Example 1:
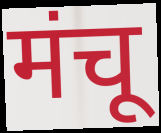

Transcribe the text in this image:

मंचू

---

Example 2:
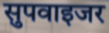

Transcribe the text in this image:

सुपवाइजर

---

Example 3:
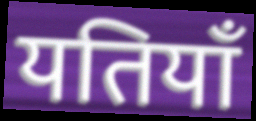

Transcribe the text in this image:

यतियाँ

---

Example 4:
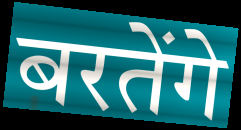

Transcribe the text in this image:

बरतेंगे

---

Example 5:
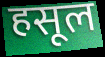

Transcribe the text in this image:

हसूल